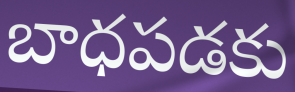
బాధపడకు